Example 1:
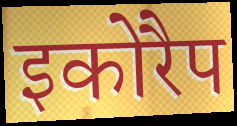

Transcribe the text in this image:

इकोरैप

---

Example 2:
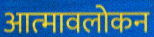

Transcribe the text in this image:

आत्‍मावलोकन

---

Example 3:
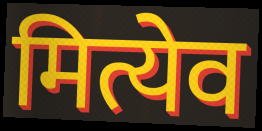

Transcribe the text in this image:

मित्येव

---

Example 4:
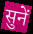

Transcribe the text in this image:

सुनें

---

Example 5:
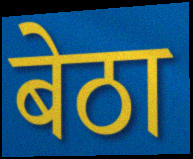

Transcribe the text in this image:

बेठा